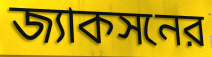
জ্যাকসনের